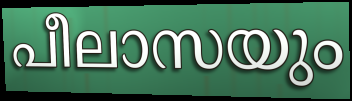
പീലാസയും